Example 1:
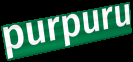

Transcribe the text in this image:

purpuru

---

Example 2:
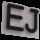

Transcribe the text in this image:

EJ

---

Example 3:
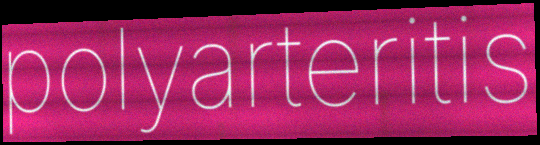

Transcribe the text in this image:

polyarteritis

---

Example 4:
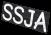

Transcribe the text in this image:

SSJA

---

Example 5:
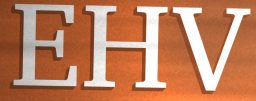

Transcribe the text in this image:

EHV